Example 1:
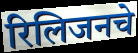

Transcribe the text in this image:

रिलिजनचे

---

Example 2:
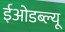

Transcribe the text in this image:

ईओडब्ल्यू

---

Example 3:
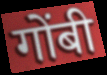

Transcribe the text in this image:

गोंबी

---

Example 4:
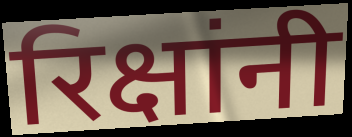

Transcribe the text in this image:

रिक्षांनी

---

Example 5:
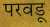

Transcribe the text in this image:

परवडू